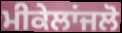
ਮੀਕੇਲਾਂਜਲੋ